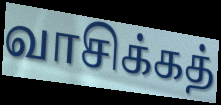
வாசிக்கத்